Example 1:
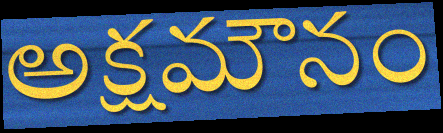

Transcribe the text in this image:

అక్షమౌనం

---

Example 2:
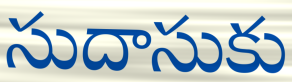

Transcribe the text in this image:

సుదాసుకు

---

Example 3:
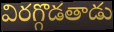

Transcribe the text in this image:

విరగ్గొడతాడు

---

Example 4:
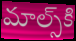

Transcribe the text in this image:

మాల్స్‌కి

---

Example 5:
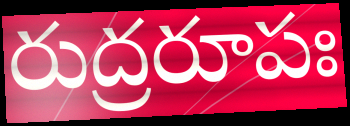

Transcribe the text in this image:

రుద్రరూపః